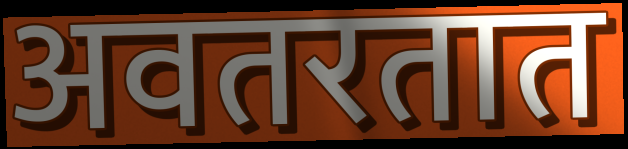
अवतरतात